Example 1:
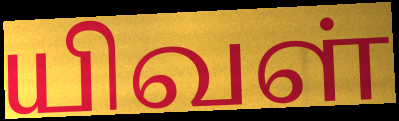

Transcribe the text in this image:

யிவள்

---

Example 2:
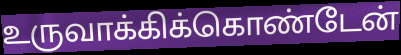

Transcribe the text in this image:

உருவாக்கிக்கொண்டேன்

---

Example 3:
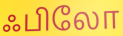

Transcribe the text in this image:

ஃபிலோ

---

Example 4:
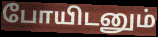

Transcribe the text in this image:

போயிடனும்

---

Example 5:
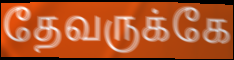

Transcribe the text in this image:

தேவருக்கே